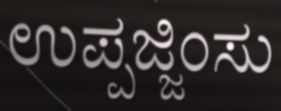
ಉಪ್ಪಜ್ಜಿಂಸು